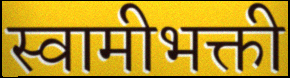
स्वामीभक्ती